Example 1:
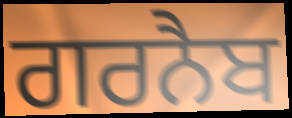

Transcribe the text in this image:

ਗਰਨੈਬ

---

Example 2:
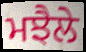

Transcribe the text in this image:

ਮਝੈਲੇ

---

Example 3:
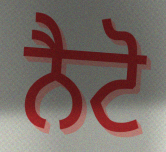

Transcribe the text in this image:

ਨੈਟੋ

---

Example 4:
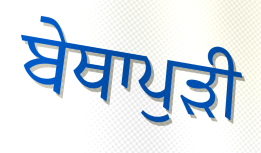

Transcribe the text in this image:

ਬੇਥਾਪੁੜੀ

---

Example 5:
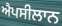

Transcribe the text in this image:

ਐਪਸੀਲਾਨ